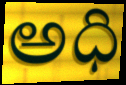
అధి